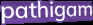
pathigam